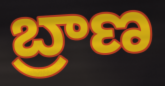
బ్రాణ